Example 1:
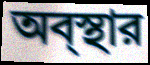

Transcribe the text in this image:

অব্স্থার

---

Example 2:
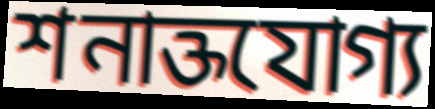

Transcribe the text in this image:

শনাক্তযোগ্য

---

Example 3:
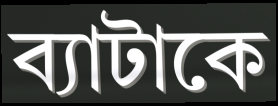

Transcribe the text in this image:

ব্যাটাকে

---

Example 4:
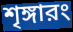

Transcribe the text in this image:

শৃঙ্গারং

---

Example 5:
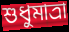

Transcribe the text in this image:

শুধুমাত্রা